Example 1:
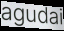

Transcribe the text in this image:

agudai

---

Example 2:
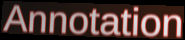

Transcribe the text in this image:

Annotation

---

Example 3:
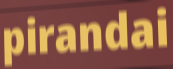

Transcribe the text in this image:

pirandai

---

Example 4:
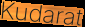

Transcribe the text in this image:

Kudarat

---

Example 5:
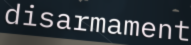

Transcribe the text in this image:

disarmament